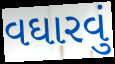
વઘારવું